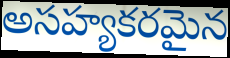
అసహ్యకరమైన